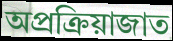
অপ্রক্রিয়াজাত